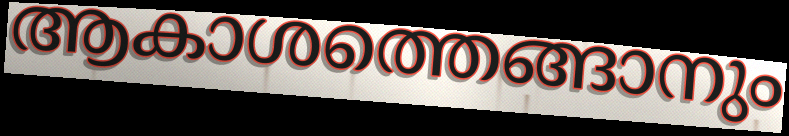
ആകാശത്തെങ്ങാനും